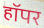
हॉपर